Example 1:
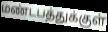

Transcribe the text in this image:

மண்டபத்துக்குள்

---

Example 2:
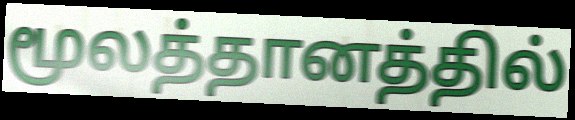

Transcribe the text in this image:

மூலத்தானத்தில்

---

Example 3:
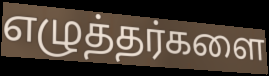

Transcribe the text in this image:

எழுத்தர்களை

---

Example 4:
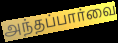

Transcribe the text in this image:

அந்தப்பார்வை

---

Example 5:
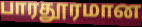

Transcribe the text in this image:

பாரதூரமான